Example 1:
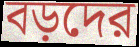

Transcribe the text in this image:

বড়দের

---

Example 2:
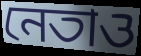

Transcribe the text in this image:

নেতাও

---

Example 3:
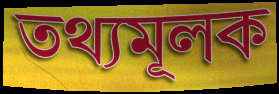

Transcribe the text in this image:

তথ্যমূলক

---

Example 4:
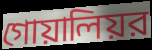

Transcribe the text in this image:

গোয়ালিয়র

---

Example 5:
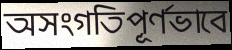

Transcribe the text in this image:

অসংগতিপূর্ণভাবে